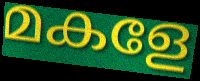
മകളേ